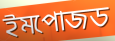
ইমপোজড